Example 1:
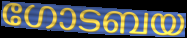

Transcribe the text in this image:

ഗോടബയ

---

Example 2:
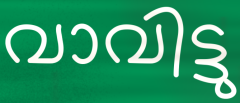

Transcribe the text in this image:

വാവിട്ടു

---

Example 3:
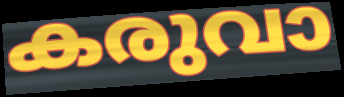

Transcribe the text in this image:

കരുവാ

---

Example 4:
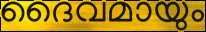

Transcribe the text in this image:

ദൈവമായും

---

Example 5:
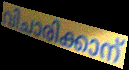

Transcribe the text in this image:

വിചാരിക്കാന്